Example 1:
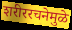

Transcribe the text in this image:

शरीररचनेमुळे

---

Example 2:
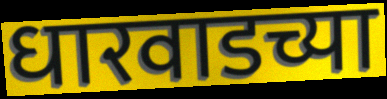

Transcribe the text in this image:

धारवाडच्या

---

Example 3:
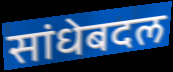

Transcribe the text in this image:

सांधेबदल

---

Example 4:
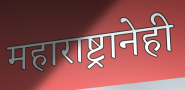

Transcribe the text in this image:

महाराष्ट्रानेही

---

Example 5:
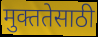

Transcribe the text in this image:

मुक्ततेसाठी